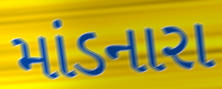
માંડનારા